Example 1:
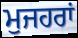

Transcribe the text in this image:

ਮੁਜਹਰਾਂ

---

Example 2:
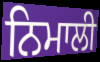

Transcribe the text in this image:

ਨਿਮਾਲੀ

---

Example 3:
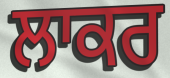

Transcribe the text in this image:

ਲਾਕਰ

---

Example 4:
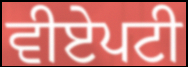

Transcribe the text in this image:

ਵੀਏਪਟੀ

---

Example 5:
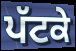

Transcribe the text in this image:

ਪੱਟਕੇ